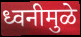
ध्वनीमुळे